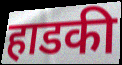
हाडकी